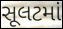
સૂલટમાં